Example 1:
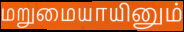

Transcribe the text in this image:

மறுமையாயினும்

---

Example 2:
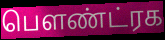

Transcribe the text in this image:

பௌண்ட்ரக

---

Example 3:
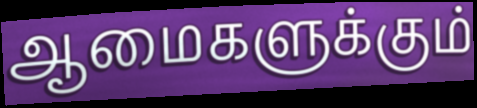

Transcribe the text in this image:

ஆமைகளுக்கும்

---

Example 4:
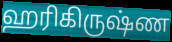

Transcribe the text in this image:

ஹரிகிருஷ்ண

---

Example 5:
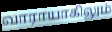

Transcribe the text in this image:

வாராயாகிலும்